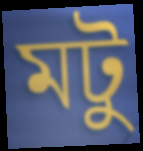
মটু